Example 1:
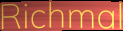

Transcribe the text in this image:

Richmal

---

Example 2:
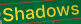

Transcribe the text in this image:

Shadows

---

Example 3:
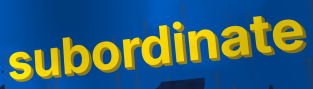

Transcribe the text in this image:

subordinate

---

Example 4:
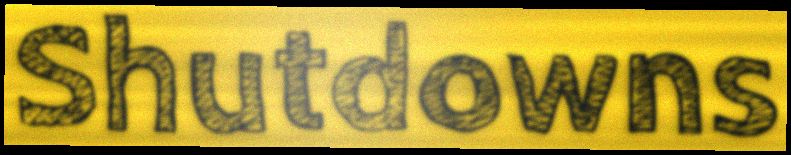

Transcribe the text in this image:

Shutdowns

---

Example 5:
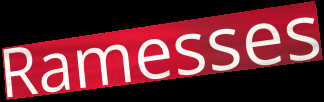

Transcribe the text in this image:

Ramesses